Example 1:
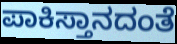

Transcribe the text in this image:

ಪಾಕಿಸ್ತಾನದಂತೆ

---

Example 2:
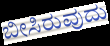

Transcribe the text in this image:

ಬೀಸಿರುವುದು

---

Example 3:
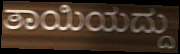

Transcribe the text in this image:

ತಾಯಿಯದ್ದು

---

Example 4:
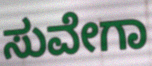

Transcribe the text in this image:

ಸುವೇಗಾ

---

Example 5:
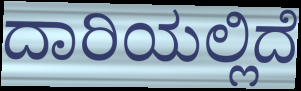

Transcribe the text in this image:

ದಾರಿಯಲ್ಲಿದೆ